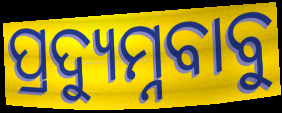
ପ୍ରଦ୍ୟୁମ୍ନବାବୁ